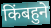
किंबहुने